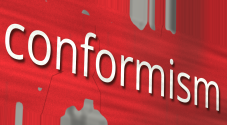
conformism